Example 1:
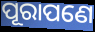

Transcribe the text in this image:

ପୂରାପଣେ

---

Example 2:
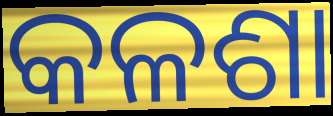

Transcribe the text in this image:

କଳଶା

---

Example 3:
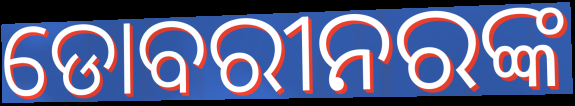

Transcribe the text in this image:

ଡୋବରୀନରଙ୍କ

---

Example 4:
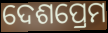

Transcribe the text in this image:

ଦେଶପ୍ରେମ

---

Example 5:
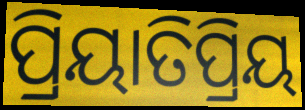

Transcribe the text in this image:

ପ୍ରିୟାତିପ୍ରିୟ